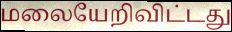
மலையேறிவிட்டது